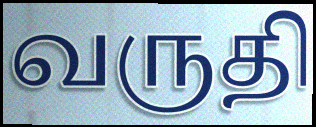
வருதி